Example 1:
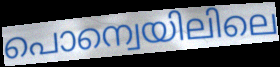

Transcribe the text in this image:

പൊന്വെയിലിലെ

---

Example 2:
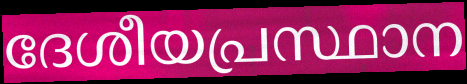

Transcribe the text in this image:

ദേശീയപ്രസ്ഥാന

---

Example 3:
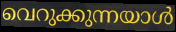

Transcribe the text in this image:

വെറുക്കുന്നയാൾ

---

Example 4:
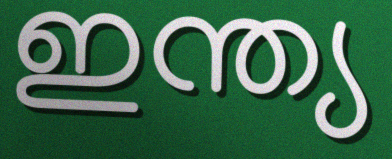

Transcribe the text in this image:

ഇന്ത്യ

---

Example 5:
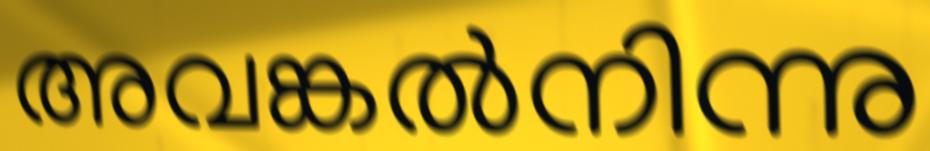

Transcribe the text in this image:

അവങ്കൽനിന്നു